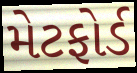
મેટફોર્ડ